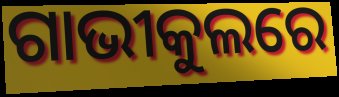
ଗାଭୀକୁଲରେ